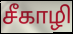
சீகாழி